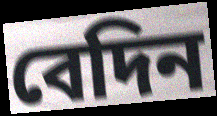
বেদিন